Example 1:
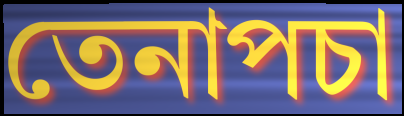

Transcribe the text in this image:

তেনাপচা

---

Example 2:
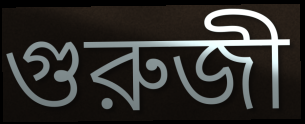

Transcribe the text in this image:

গুরুজী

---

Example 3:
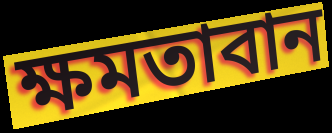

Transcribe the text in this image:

ক্ষমতাবান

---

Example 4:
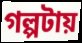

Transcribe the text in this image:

গল্পটায়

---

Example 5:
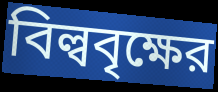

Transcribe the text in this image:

বিল্ববৃক্ষের